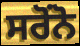
ਸਰੋਂਨੋ